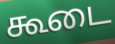
கூடை